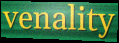
venality